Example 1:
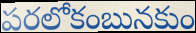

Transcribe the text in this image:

పరలోకంబునకుం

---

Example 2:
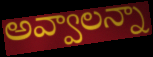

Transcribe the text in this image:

అవ్వాలన్నా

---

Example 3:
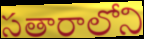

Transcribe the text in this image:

సతారాలోని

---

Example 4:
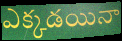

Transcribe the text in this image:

ఎక్కడయినా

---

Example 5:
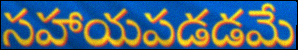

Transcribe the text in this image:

సహాయపడడమే